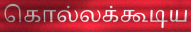
கொல்லக்கூடிய